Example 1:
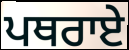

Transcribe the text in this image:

ਪਥਰਾਏ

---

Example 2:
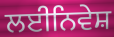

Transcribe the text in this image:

ਲਈਨਿਵੇਸ਼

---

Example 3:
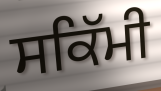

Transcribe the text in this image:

ਸਕਿੱਮੀ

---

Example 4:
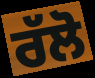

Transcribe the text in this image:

ਰੱਲੋ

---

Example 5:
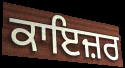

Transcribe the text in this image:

ਕਾਇਜ਼ਰ